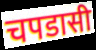
चपडासी